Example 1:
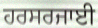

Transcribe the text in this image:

ਹਰਸਰਜਾਈ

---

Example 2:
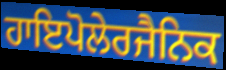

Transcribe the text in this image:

ਹਾਇਪੋਲੇਰਜੈਨਿਕ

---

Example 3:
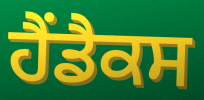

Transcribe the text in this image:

ਹੈਂਡੈਕਸ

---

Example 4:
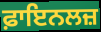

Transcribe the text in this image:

ਫ਼ਾਇਨਲਜ਼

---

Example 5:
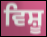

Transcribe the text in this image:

ਵਿਸ਼ੂ